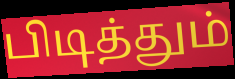
பிடித்தும்